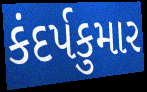
કંદર્પકુમાર